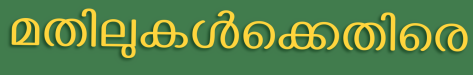
മതിലുകൾക്കെതിരെ